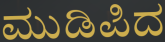
ಮುಡಿಪಿದ